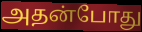
அதன்போது